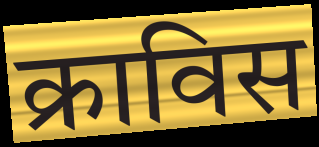
क्राविस